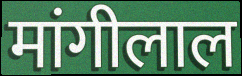
मांगीलाल